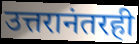
उत्तरानंतरही